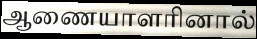
ஆணையாளரினால்